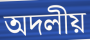
অদলীয়